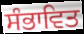
ਸੰਭਾਵਿਤ